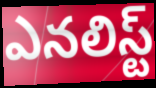
ఎనలిస్ట్